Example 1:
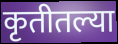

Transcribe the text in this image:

कृतीतल्या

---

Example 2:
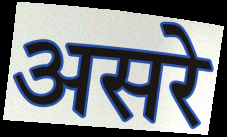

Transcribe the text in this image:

असरे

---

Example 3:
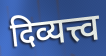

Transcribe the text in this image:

दिव्यत्त्व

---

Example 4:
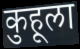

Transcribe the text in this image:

कुहूला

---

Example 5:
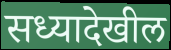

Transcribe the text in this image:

सध्यादेखील